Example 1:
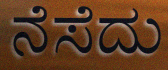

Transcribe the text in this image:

ನೆಸೆದು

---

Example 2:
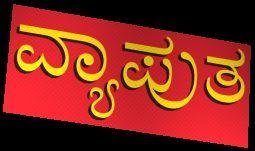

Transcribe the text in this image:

ವ್ಯಾಪುತ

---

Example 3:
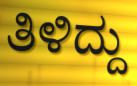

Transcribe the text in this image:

ತಿಳಿದ್ದು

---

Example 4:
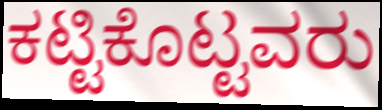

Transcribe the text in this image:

ಕಟ್ಟಿಕೊಟ್ಟವರು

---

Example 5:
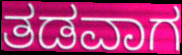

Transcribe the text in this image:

ತಡವಾಗ